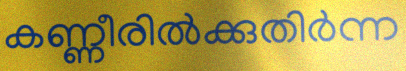
കണ്ണീരിൽക്കുതിർന്ന